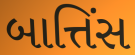
બાત્તિંસ